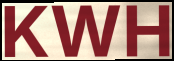
KWH